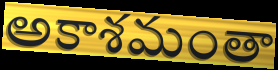
అకాశమంతా